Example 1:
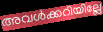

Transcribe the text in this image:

അവൾക്കറിയില്ലേ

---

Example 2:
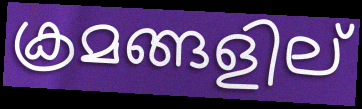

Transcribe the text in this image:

ക്രമങ്ങളില്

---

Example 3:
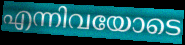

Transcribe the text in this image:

എന്നിവയോടെ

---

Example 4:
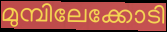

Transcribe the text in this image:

മുമ്പിലേക്കോടി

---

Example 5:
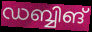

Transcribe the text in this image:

ഡബ്ബിങ്